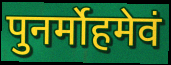
पुनर्मोहमेवं